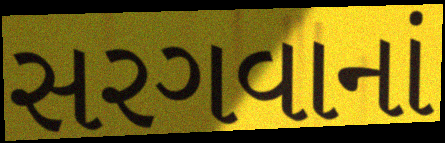
સરગવાનાં